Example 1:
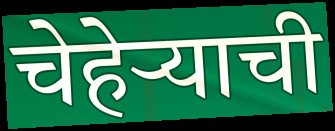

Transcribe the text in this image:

चेहेऱ्याची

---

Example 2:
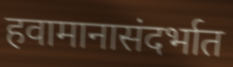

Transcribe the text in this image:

हवामानासंदर्भात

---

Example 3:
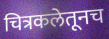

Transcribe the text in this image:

चित्रकलेतूनच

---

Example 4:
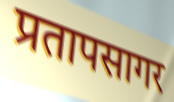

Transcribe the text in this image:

प्रतापसागर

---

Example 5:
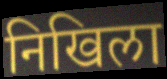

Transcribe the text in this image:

निखिला